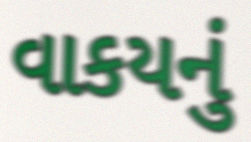
વાકયનું